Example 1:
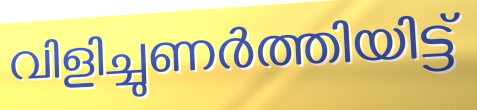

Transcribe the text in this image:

വിളിച്ചുണർത്തിയിട്ട്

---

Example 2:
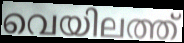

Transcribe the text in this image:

വെയിലത്ത്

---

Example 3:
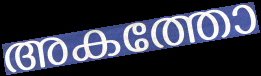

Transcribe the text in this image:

അകത്തോ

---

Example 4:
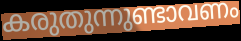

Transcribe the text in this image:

കരുതുന്നുണ്ടാവണം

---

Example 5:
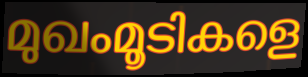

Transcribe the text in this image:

മുഖംമൂടികളെ